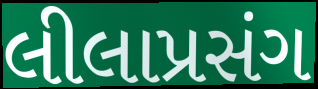
લીલાપ્રસંગ